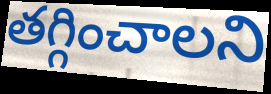
తగ్గించాలని